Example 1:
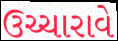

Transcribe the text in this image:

ઉચ્ચારાવે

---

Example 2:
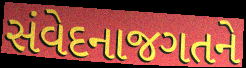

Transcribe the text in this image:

સંવેદનાજગતને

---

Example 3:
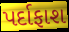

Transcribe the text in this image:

પર્દાફાશ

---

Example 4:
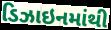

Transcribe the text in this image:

ડિઝાઇનમાંથી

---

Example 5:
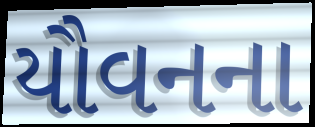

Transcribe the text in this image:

યૌવનના